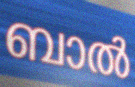
ബാൽ